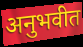
अनुभवीत